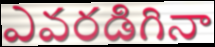
ఎవరడిగినా